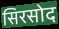
सिरसोद